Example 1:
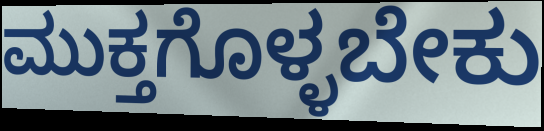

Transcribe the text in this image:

ಮುಕ್ತಗೊಳ್ಳಬೇಕು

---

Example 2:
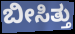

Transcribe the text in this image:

ಬೀಸಿತ್ತು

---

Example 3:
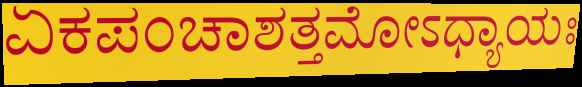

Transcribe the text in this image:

ಏಕಪಂಚಾಶತ್ತಮೋಽಧ್ಯಾಯಃ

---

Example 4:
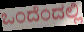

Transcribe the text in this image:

ಒಂದೆಂದಲ್ಲಿ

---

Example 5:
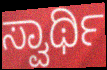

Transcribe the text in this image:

ಸ್ವಾರ್ಥಿ